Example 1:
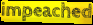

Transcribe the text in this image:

impeached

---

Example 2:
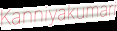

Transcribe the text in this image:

Kanniyakumari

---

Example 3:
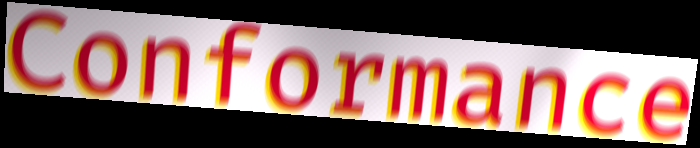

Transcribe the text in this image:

Conformance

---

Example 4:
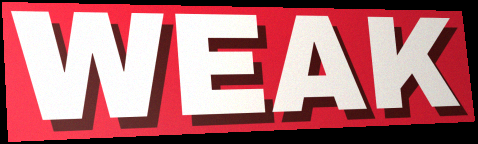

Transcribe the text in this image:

WEAK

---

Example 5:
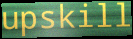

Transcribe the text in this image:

upskill